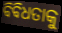
ବିବିଧତାକୁ